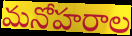
మనోహరాల